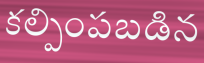
కల్పింపబడిన